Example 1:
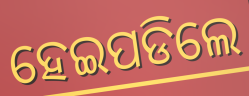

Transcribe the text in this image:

ହେଇପଡିଲେ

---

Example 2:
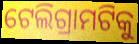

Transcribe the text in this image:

ଟେଲିଗ୍ରାମଟିକୁ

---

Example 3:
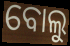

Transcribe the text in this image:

ବୋଲୁ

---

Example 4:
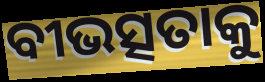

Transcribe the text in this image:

ବୀଭତ୍ସତାକୁ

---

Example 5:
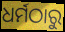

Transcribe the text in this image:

ଧର୍ମଠାରୁ